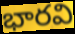
భారవి